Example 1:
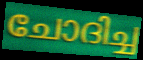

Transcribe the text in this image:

ചോദിച്ച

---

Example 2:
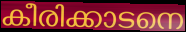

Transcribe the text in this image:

കീരിക്കാടനെ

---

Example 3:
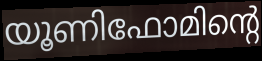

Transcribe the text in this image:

യൂണിഫോമിന്റെ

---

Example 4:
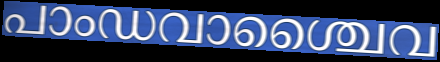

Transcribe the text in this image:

പാംഡവാശ്ചൈവ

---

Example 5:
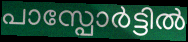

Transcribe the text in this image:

പാസ്പോർട്ടിൽ